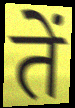
तें